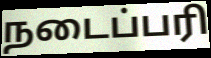
நடைப்பரி